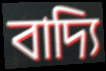
বাদ্যি